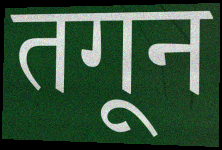
तगून